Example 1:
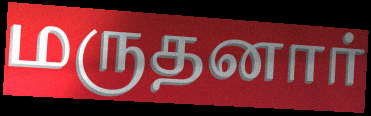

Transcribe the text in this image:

மருதனார்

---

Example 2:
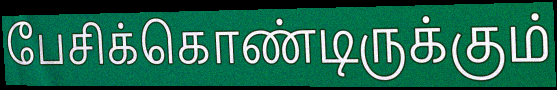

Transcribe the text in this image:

பேசிக்கொண்டிருக்கும்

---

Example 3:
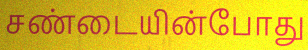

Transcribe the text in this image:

சண்டையின்போது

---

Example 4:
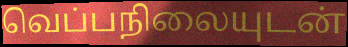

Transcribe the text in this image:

வெப்பநிலையுடன்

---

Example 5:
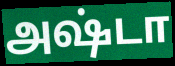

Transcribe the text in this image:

அஷ்டா